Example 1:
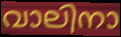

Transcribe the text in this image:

വാലിനാ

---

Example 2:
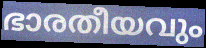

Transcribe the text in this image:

ഭാരതീയവും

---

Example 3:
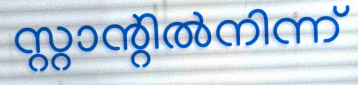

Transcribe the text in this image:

സ്റ്റാന്റിൽനിന്ന്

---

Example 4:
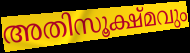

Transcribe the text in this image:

അതിസൂക്ഷ്മവും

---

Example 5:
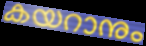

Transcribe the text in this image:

കയറാനും